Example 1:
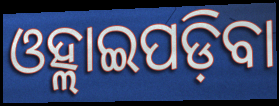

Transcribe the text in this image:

ଓହ୍ଲାଇପଡ଼ିବା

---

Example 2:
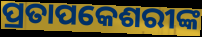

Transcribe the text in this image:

ପ୍ରତାପକେଶରୀଙ୍କ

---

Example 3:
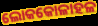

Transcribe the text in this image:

ଲୋକକୋଳାହଳ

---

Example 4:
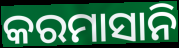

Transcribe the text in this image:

କରମାସାନି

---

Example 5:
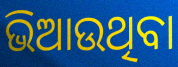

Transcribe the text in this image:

ଭିଆଉଥିବା